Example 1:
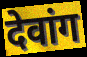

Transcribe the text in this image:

देवांग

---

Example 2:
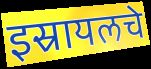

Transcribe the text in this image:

इस्रायलचे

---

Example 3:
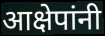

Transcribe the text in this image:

आक्षेपांनी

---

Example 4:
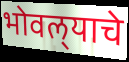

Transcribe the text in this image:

भोवल्याचे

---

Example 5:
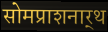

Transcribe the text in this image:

सोमप्राशनार्थ